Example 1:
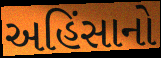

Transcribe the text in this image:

અહિંસાનો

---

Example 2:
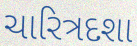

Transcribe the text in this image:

ચારિત્રદશા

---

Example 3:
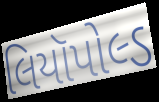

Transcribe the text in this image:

લિયૉપોલ્ડ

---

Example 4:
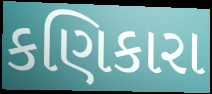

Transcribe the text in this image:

કણિકારા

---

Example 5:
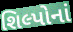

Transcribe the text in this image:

શિલ્પોનાં